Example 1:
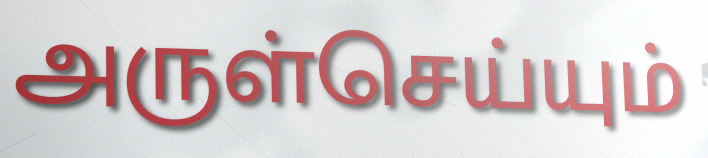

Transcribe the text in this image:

அருள்செய்யும்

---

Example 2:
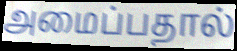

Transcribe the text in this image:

அமைப்பதால்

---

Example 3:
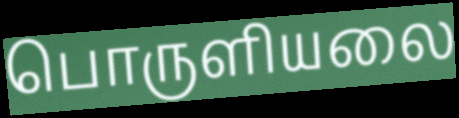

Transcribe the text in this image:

பொருளியலை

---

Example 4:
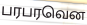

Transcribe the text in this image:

பரபரவென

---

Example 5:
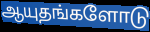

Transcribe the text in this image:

ஆயுதங்களோடு